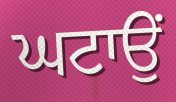
ਘਟਾਉਂ